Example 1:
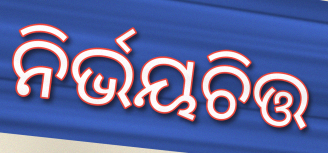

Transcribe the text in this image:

ନିର୍ଭୟଚିତ୍ତ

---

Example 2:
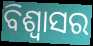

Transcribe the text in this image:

ବିଶ୍ବାସର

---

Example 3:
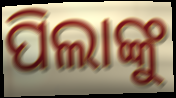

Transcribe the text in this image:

ପିଲାଙ୍କୁ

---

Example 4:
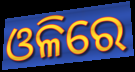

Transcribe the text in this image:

ଓଳିରେ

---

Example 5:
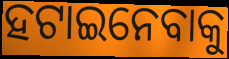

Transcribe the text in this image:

ହଟାଇନେବାକୁ